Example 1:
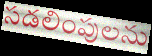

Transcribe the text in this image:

సడలింపులను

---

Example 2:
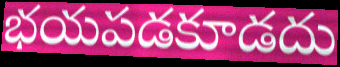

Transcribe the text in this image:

భయపడకూడదు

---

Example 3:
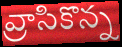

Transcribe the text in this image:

వ్రాసికొన్న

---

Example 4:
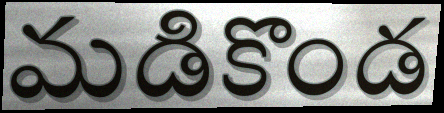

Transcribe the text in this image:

మడికొండ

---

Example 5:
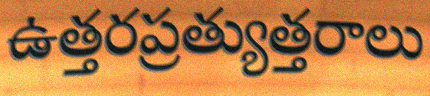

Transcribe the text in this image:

ఉత్తరప్రత్యుత్తరాలు